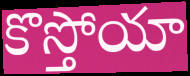
కొస్తోయా